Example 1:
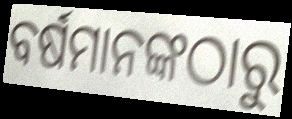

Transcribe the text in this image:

ବର୍ଷମାନଙ୍କଠାରୁ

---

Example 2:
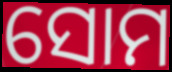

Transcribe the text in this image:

ସୋମ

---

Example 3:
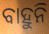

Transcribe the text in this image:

ବାହୁନି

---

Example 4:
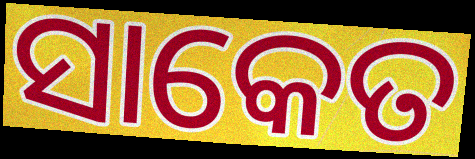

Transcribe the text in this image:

ସାକେତ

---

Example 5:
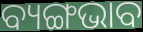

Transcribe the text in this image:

ବ୍ୟଙ୍ଗଭାବ